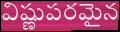
విష్ణుపరమైన